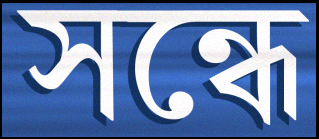
সন্ধে